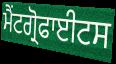
ਮੈਂਟਗ੍ਰੋਫਾਈਟਸ